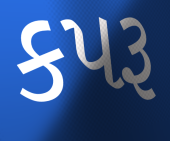
કપરૂ